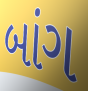
બાંગ